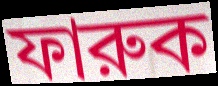
ফারুক